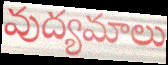
వుద్యమాలు